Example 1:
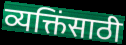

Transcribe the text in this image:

व्यक्तिंसाठी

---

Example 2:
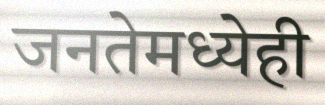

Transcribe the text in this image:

जनतेमध्येही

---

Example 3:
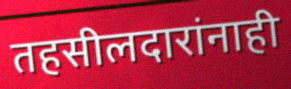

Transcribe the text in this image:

तहसीलदारांनाही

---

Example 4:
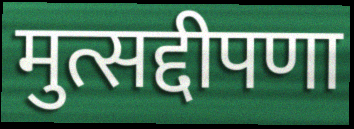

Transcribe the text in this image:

मुत्सद्दीपणा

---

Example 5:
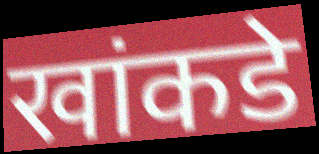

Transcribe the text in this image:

खांकडे